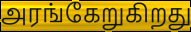
அரங்கேறுகிறது